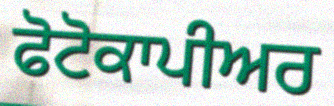
ਫੋਟੋਕਾਪੀਅਰ